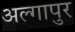
अल्गापुर